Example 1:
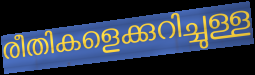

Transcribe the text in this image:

രീതികളെക്കുറിച്ചുള്ള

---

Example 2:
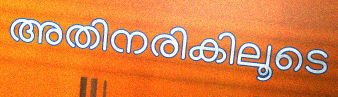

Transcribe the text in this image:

അതിനരികിലൂടെ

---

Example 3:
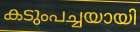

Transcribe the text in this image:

കടുംപച്ചയായി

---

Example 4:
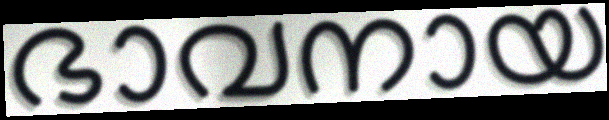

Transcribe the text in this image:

ഭാവനായ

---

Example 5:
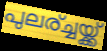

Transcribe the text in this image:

പുലര്ച്ചയ്ക്ക്